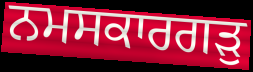
ਨਮਸਕਾਰਗੜੁ